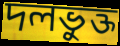
দলভুক্ত